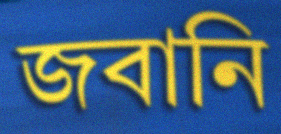
জবানি